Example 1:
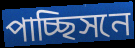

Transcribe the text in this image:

পাচ্ছিসনে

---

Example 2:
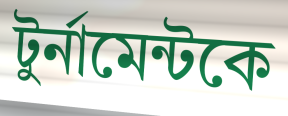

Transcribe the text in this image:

টুর্নামেন্টকে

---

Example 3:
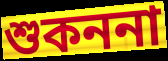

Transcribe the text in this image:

শুকননা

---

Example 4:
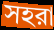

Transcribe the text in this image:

সহরা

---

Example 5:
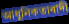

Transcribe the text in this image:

আধুনিকতাবাদী